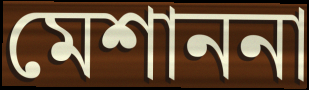
মেশাননা